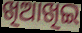
ଖିଆଖିଇ